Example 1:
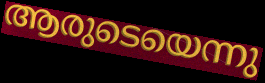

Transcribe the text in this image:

ആരുടെയെന്നു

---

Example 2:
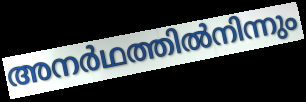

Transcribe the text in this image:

അനർഥത്തിൽനിന്നും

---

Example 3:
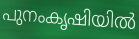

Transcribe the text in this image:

പുനംകൃഷിയിൽ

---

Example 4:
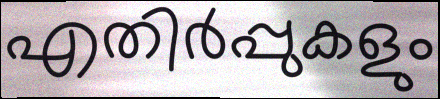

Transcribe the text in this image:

എതിർപ്പുകളും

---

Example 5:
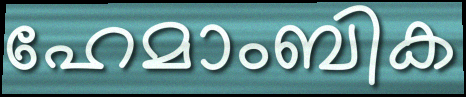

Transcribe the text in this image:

ഹേമാംബിക